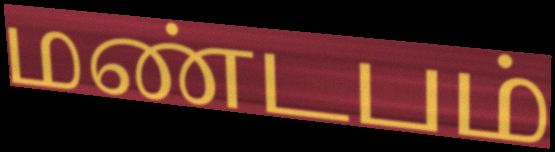
மண்டபம்